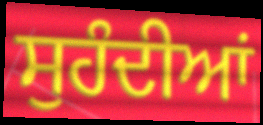
ਸੁਹੰਦੀਆਂ